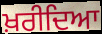
ਖ਼ਰੀਦਿਆ